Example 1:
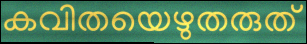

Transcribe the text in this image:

കവിതയെഴുതരുത്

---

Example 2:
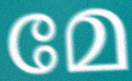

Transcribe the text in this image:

മേ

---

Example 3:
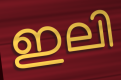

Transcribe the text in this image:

ഇലി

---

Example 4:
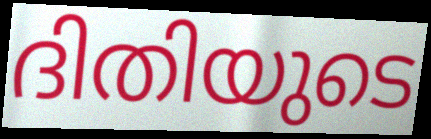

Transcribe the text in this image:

ദിതിയുടെ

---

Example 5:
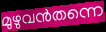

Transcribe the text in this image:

മുഴുവൻതന്നെ